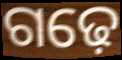
ଗଢ଼େ